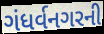
ગંધર્વનગરની